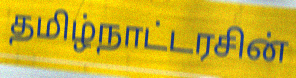
தமிழ்நாட்டரசின்